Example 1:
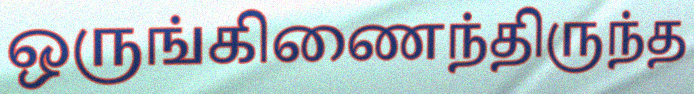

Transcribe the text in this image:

ஒருங்கிணைந்திருந்த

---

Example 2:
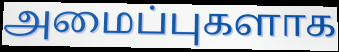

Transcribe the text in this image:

அமைப்புகளாக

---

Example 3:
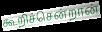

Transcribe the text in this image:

கூறிச்சென்றான்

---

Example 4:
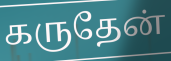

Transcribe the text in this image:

கருதேன்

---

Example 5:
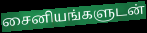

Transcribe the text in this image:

சைனியங்களுடன்